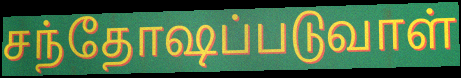
சந்தோஷப்படுவாள்